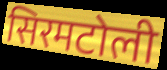
सिरमटोली